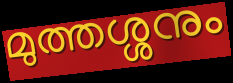
മുത്തശ്ശനും